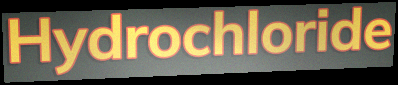
Hydrochloride